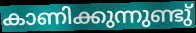
കാണിക്കുന്നുണ്ടു്